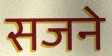
सजने